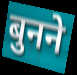
बुनने